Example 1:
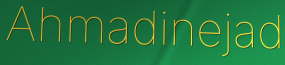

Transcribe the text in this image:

Ahmadinejad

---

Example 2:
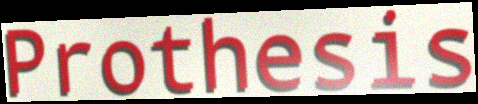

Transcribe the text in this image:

Prothesis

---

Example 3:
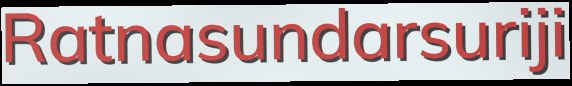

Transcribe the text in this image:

Ratnasundarsuriji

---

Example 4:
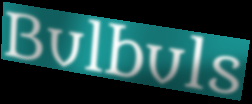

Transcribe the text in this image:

Bulbuls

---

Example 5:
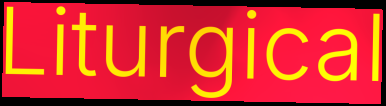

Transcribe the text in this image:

Liturgical